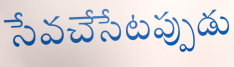
సేవచేసేటప్పుడు